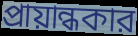
প্রায়ান্ধকার